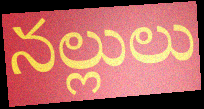
నల్లులు